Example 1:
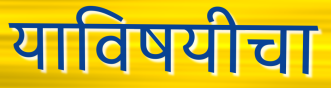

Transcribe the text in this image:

याविषयीचा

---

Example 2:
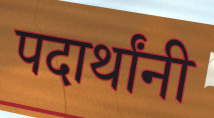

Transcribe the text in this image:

पदार्थांनी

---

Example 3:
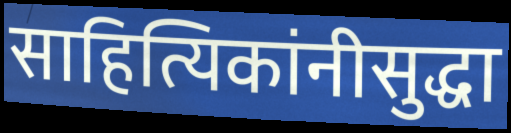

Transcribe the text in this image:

साहित्यिकांनीसुद्धा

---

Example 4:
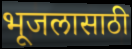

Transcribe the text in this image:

भूजलासाठी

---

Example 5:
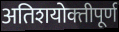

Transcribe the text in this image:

अतिशयोक्‍तीपूर्ण